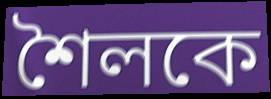
শৈলকে